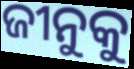
ଜୀନୁକୁ